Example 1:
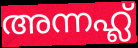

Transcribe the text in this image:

അന്നഹ്ല്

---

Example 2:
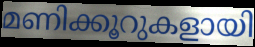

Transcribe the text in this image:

മണിക്കൂറുകളായി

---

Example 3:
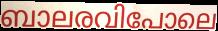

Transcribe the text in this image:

ബാലരവിപോലെ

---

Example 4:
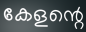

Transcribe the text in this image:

കേളന്റെ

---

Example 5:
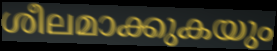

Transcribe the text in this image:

ശീലമാക്കുകയും